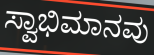
ಸ್ವಾಭಿಮಾನವು